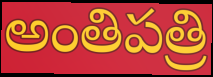
అంతిపత్రి